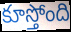
కూస్తోంది